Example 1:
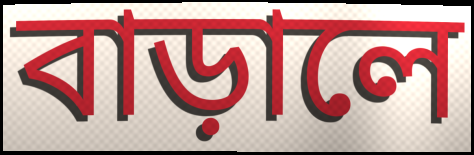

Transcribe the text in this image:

বাড়ালে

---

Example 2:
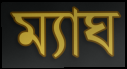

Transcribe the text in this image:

ম্যাঘ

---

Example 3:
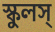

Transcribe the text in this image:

স্কুলস্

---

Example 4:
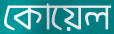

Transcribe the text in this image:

কোয়েল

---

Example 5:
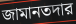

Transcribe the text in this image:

জামানতদার